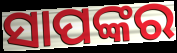
ସାପଙ୍କର